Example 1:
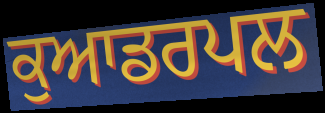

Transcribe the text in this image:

ਕੁਆਡਰਪਲ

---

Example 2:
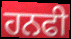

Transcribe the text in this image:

ਹਨਫੀ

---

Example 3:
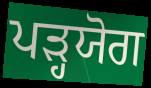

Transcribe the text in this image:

ਪੜ੍ਹਯੋਗ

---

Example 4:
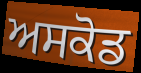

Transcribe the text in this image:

ਅਸਕੋਡ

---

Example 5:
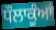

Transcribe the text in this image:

ਧੌਲਾਕੂੰਆਂ